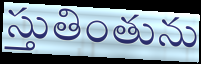
స్తుతింతును